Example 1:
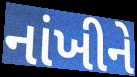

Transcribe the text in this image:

નાંખીને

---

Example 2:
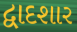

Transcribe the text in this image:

દ્વાદશાર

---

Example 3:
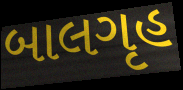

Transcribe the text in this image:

બાલગૃહ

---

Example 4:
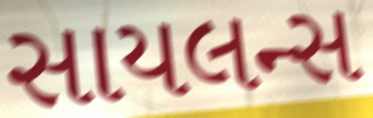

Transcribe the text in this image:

સાયલન્સ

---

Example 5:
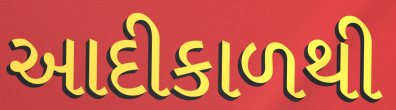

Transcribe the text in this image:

આદીકાળથી